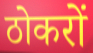
ठोकरों